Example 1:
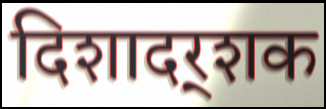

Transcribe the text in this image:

दिशादर्शक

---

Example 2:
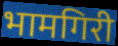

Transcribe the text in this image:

भामगिरी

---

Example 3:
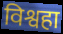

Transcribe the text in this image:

विश्वहा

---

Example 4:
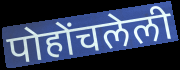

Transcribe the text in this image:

पोहोंचलेली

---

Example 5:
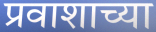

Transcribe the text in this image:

प्रवाशाच्या